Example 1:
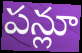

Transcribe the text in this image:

పన్లూ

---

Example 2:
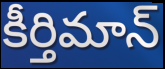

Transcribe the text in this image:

కీర్తిమాన్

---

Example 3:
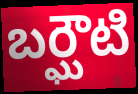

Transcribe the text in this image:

బర్ఘౌటి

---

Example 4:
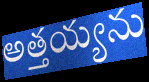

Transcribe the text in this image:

అత్తయ్యను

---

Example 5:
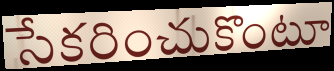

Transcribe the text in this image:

సేకరించుకొంటూ